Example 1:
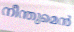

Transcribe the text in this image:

നീന്തുമെൻ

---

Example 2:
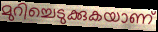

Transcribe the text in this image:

മുറിച്ചെടുക്കുകയാണ്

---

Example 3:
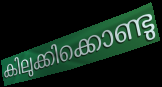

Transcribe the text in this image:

കിലുക്കിക്കൊണ്ടു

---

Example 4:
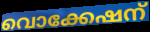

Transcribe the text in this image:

വൊക്കേഷന്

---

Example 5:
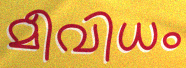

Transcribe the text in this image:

മീവിധം